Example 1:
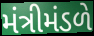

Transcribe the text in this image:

મંત્રીમંડળે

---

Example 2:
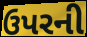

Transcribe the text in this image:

ઉપરની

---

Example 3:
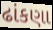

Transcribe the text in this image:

ઢાંકણા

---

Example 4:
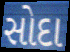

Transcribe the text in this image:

સોદા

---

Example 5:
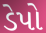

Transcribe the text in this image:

ડેપો